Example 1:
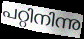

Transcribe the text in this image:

പറ്റിനിന്നു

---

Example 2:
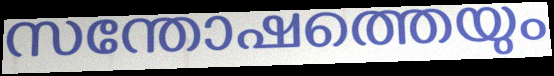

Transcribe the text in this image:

സന്തോഷത്തെയും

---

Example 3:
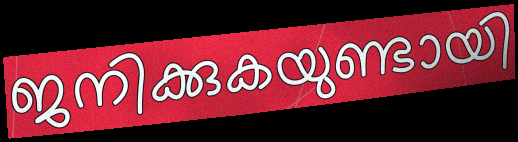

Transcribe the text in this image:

ജനിക്കുകയുണ്ടായി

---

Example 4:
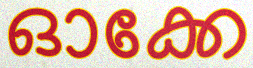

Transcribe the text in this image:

ഓക്കേ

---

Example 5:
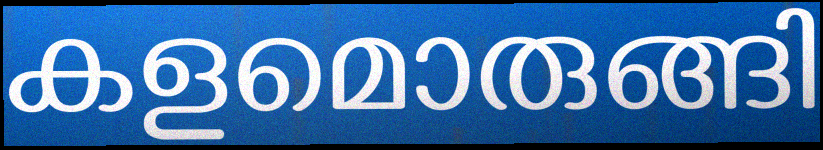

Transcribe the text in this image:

കളമൊരുങ്ങി